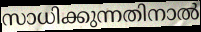
സാധിക്കുന്നതിനാൽ